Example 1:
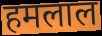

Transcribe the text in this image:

हमलाल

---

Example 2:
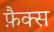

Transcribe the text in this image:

फ़ैक्स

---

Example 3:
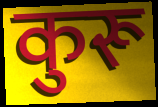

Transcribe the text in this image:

कुरू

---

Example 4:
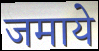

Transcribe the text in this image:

जमाये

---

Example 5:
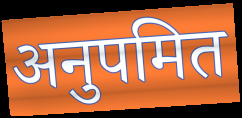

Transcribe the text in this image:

अनुपमित